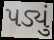
પડ્યું